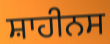
ਸ਼ਾਹੀਨਸ